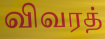
விவரத்